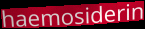
haemosiderin